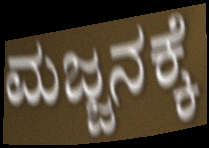
ಮಜ್ಜನಕ್ಕೆ